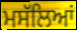
ਮਸੱਲਿਆਂ